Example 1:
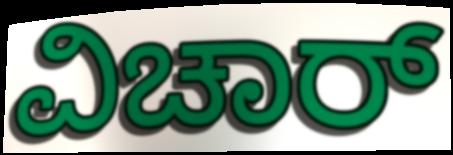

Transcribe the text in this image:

ವಿಚಾರ್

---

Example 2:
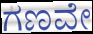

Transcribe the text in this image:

ಗಣವೇ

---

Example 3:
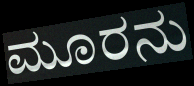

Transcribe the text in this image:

ಮೂರನು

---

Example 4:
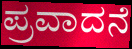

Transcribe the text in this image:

ಪ್ರವಾದನೆ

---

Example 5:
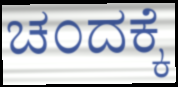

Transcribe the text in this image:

ಚಂದಕ್ಕೆ